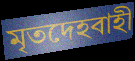
মৃতদেহবাহী